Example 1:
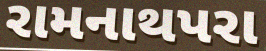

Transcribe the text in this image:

રામનાથપરા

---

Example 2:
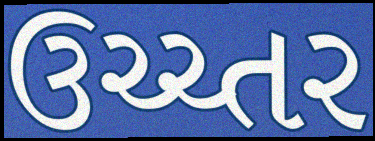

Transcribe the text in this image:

ઉચ્ચ્તર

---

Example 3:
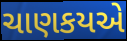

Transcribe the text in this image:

ચાણકયએ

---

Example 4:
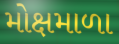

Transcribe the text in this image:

મોક્ષમાળા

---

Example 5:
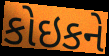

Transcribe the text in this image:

કોઇકને